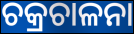
ଚକ୍ରଚାଳନା